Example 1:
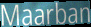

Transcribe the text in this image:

Maarban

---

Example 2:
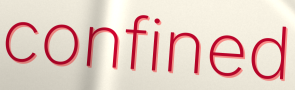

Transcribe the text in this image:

confined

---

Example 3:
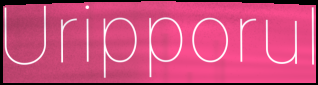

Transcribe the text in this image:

Uripporul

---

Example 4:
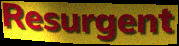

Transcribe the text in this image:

Resurgent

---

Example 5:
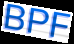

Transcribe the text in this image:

BPF